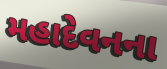
મહાદેવનના